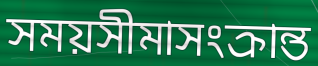
সময়সীমাসংক্রান্ত